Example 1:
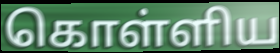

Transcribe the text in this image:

கொள்ளிய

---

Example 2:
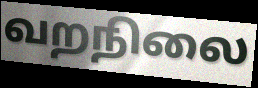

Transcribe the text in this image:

வறநிலை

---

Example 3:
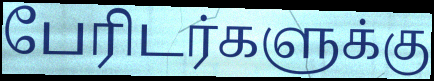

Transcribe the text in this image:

பேரிடர்களுக்கு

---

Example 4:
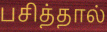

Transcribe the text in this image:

பசித்தால்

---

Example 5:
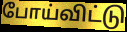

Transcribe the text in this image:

போய்விட்டு